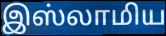
இஸ்லாமிய